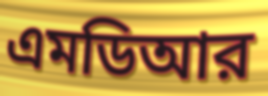
এমডিআর